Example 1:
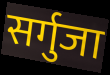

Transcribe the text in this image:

सर्गुजा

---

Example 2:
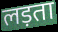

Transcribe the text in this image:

लड़ता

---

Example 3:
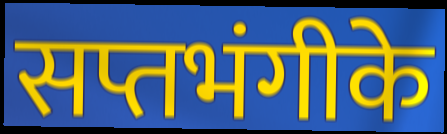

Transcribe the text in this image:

सप्तभंगीके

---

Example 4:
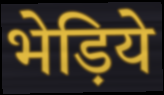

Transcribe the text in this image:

भेड़िये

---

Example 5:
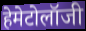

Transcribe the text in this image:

हेमेटोलॉजी